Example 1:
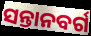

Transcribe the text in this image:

ସନ୍ତାନବର୍ଗ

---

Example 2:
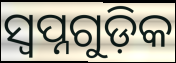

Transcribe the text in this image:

ସ୍ୱପ୍ନଗୁଡ଼ିକ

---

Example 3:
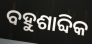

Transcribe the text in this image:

ବହୁଶାବ୍ଦିକ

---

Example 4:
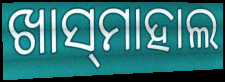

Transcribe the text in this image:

ଖାସ୍‌ମାହାଲ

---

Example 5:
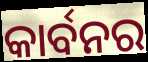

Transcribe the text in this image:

କାର୍ବନର